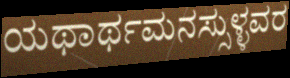
ಯಥಾರ್ಥಮನಸ್ಸುಳ್ಳವರ